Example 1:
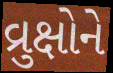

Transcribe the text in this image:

વ્રુક્ષોને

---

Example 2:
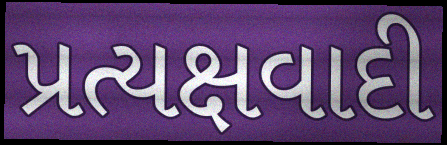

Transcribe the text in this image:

પ્રત્યક્ષવાદી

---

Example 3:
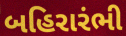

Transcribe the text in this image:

બહિરારંભી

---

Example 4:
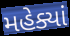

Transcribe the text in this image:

મહેક્યાં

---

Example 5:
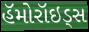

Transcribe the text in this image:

હૅમોરૉઇડ્સ